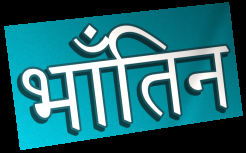
भाँतिन